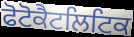
ਫੋਟੋਕੈਟਲਿਟਿਕ